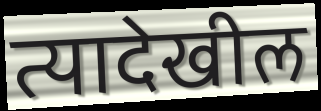
त्यादेखील